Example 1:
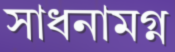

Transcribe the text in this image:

সাধনামগ্ন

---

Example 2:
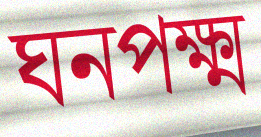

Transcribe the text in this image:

ঘনপক্ষ্ম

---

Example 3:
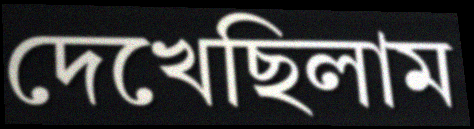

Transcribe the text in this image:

দেখেছিলাম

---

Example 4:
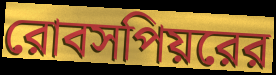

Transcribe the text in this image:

রোবসপিয়রের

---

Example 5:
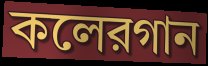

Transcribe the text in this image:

কলেরগান